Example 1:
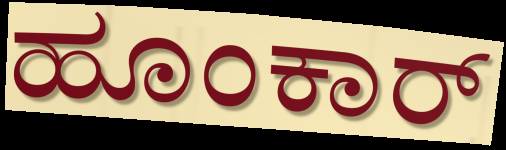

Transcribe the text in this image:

ಹೂಂಕಾರ್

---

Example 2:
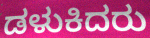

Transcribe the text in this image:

ಡಳುಕಿದರು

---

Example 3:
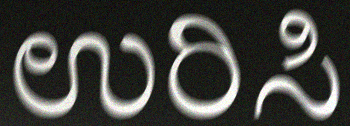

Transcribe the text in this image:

ಉರಿಸಿ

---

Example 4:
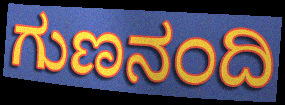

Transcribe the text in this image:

ಗುಣನಂದಿ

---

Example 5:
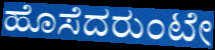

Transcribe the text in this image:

ಹೊಸೆದರುಂಟೇ